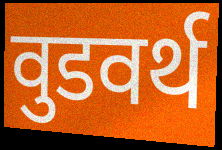
वुडवर्थ